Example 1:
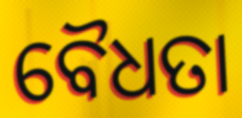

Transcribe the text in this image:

ବୈଧତା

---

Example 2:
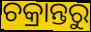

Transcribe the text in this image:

ଚକ୍ରାନ୍ତରୁ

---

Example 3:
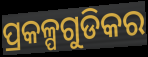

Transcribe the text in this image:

ପ୍ରକଳ୍ପଗୁଡିକର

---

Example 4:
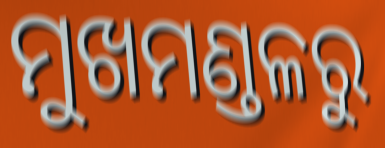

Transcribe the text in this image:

ମୁଖମଣ୍ଡଳରୁ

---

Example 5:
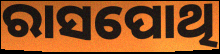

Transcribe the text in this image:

ରାସପୋଥି